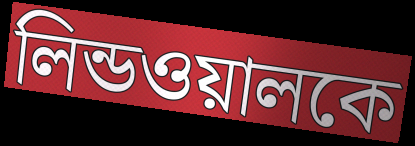
লিন্ডওয়ালকে